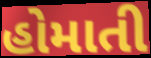
હોમાતી